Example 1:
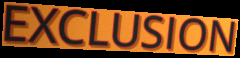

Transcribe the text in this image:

EXCLUSION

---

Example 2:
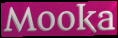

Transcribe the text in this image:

Mooka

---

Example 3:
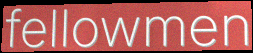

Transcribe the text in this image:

fellowmen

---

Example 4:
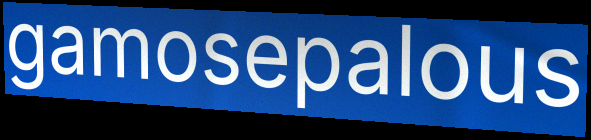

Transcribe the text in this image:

gamosepalous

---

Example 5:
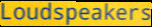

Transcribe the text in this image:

Loudspeakers